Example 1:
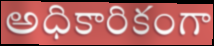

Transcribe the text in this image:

అధికారికంగా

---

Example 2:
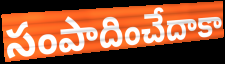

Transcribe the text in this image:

సంపాదించేదాకా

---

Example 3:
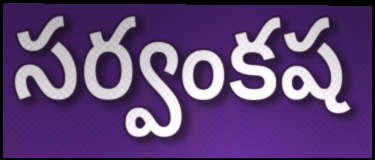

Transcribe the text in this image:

సర్వంకష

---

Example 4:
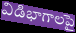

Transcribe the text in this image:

విడిభాగాలపై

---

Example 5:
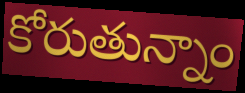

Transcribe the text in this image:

కోరుతున్నాం